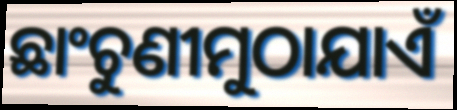
ଛାଂଚୁଣୀମୁଠାଯାଏଁ